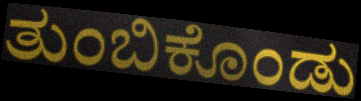
ತುಂಬಿಕೊಂಡು